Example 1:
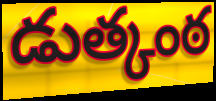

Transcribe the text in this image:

డుత్కంఠ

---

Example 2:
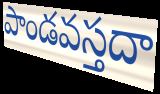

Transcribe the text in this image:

పాండవస్తదా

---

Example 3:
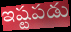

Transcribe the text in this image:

ఇష్టపడు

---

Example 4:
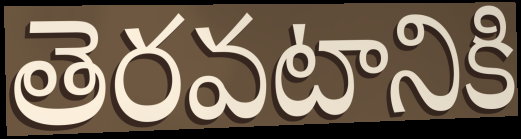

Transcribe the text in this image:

తెరవటానికి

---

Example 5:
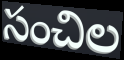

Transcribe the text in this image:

సంచిల